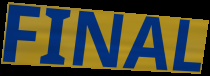
FINAL